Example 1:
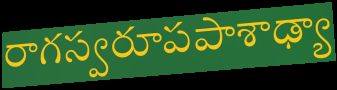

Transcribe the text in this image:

రాగస్వరూపపాశాఢ్యా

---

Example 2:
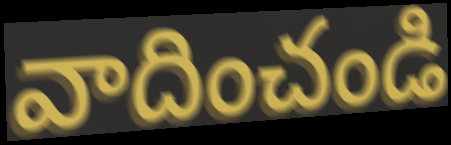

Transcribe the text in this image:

వాదించండి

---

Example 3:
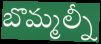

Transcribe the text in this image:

బొమ్మల్నీ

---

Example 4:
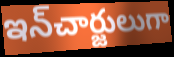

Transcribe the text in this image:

ఇన్‌చార్జులుగా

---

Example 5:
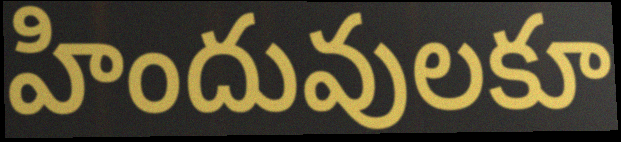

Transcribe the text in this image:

హిందువులకూ